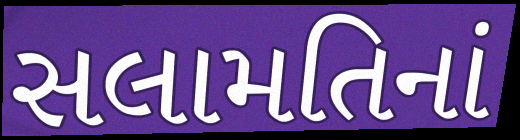
સલામતિનાં